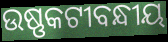
ଉଷ୍ଣକଟୀବନ୍ଧୀୟ